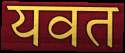
यवत